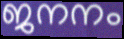
ജനനം